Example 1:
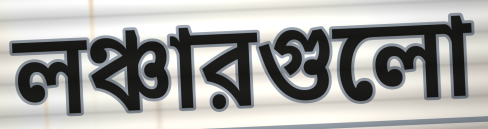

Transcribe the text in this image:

লঞ্চারগুলো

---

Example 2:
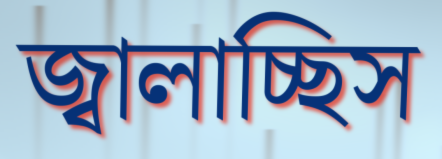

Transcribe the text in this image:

জ্বালাচ্ছিস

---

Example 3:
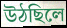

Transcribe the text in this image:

উঠছিলে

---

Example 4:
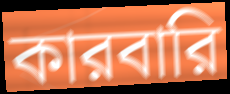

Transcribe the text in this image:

কারবারি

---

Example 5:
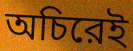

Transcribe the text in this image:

অচিরেই